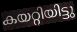
കയറ്റിയിട്ടു